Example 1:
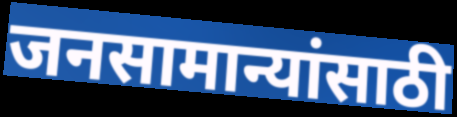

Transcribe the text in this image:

जनसामान्यांसाठी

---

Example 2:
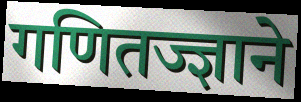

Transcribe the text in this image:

गणितज्ज्ञाने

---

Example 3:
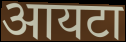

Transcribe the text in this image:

आयटा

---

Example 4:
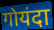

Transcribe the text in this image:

गोयंदा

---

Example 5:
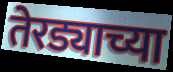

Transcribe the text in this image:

तेरड्याच्या